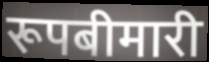
रूपबीमारी